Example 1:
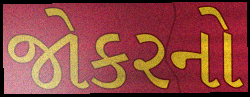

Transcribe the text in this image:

જોકરનો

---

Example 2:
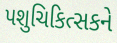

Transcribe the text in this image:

પશુચિકિત્સકને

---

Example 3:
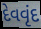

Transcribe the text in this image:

દેવવૃંદ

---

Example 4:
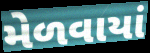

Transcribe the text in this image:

મેળવાયાં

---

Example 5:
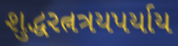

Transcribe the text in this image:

શુદ્ધરત્નત્રયપર્યાય